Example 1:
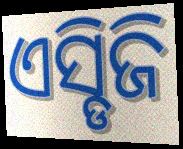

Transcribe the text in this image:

ଏସ୍ଡିଜି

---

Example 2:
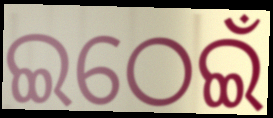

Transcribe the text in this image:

ଇଠେଇଁ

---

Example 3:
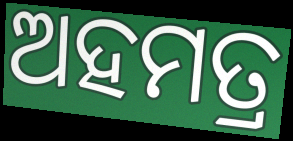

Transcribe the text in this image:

ଅହମତ୍ର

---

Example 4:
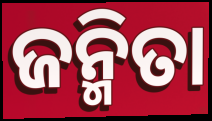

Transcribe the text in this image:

ଜନ୍ମିତା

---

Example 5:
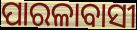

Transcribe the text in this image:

ପାରଳାବାସୀ